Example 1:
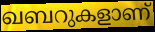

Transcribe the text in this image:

ഖബറുകളാണ്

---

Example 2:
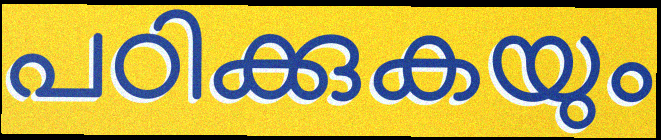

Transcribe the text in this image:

പഠിക്കുകയും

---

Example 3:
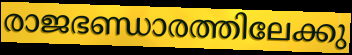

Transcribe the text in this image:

രാജഭണ്ഡാരത്തിലേക്കു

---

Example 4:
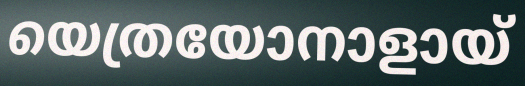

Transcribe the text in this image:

യെത്രയോനാളായ്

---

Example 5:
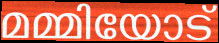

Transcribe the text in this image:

മമ്മിയോട്